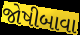
જોષીબાવા